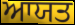
ਆਯਤ